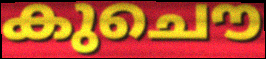
കുചൌ